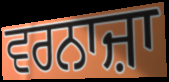
ਵਰਨਾਜ਼ਾ